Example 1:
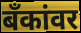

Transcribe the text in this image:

बँकांवर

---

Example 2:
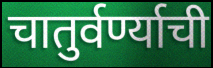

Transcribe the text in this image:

चातुर्वर्ण्याची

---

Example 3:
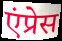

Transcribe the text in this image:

एंप्रेस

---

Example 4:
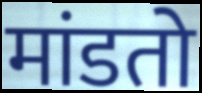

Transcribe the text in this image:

मांडतो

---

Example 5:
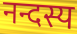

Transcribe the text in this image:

नन्दस्य